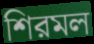
শিরমল